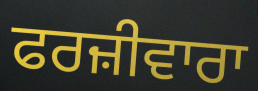
ਫਰਜ਼ੀਵਾਰਾ